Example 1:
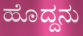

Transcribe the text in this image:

ಹೊದ್ದನು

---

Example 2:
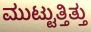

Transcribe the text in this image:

ಮುಟ್ಟುತ್ತಿತ್ತು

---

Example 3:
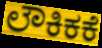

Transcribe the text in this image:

ಲೌಕಿಕಕೆ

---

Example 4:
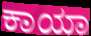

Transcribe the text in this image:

ಕಾಯಾ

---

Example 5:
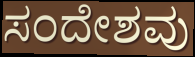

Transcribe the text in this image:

ಸಂದೇಶವು